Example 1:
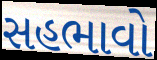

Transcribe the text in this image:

સહભાવો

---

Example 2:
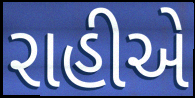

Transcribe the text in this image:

રાહીએ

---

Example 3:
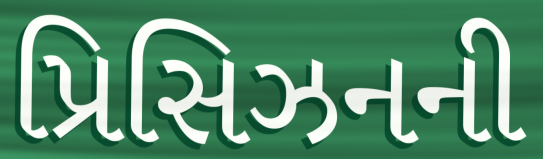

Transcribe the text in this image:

પ્રિસિઝનની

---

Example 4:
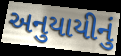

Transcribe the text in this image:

અનુયાયીનું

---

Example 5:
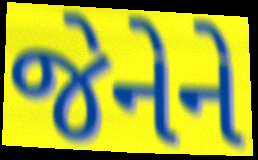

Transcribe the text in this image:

જેનેને